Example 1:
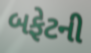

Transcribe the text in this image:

બફેટની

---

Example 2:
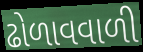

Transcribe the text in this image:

ઢોળાવવાળી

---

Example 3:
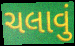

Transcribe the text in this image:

ચલાવું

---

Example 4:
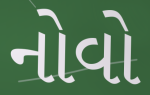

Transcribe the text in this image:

નોવો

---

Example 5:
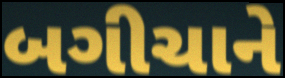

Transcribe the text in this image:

બગીચાને